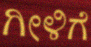
ಗೀಳಿಗೆ